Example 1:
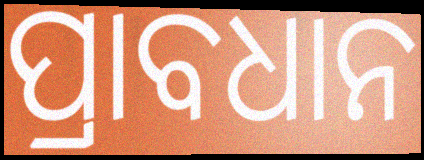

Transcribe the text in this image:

ପ୍ରାବଧାନ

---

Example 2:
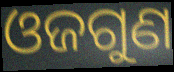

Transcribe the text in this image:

ଓଜଗୁଣ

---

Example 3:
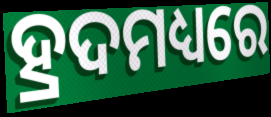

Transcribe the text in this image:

ହ୍ରଦମଧ୍ୟରେ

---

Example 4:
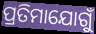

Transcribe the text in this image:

ପ୍ରତିମାଯୋଗୁଁ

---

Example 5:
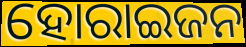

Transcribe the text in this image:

ହୋରାଇଜନ